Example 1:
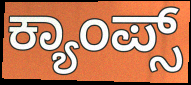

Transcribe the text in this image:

ಕ್ಯಾಂಪ್ಸ್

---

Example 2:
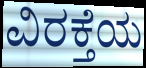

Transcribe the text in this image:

ವಿರಕ್ತೆಯ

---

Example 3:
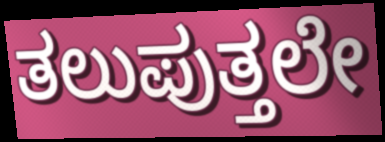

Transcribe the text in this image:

ತಲುಪುತ್ತಲೇ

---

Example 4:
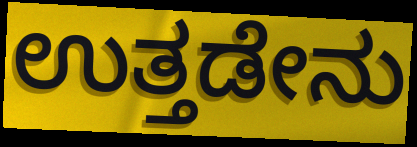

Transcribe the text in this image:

ಉತ್ತಡೇನು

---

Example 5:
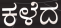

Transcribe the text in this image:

ಕಳೆದ